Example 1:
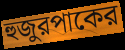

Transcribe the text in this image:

হুজুরপাকের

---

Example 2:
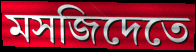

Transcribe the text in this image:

মসজিদেতে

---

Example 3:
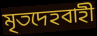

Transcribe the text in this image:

মৃতদেহবাহী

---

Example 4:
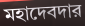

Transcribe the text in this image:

মহাদেবদার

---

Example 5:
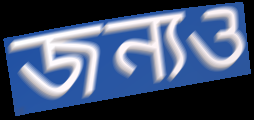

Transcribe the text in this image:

জন্যও